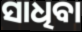
ସାଧିବା